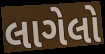
લાગેલો